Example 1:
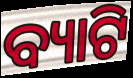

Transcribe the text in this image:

ବ୍ୟାଟି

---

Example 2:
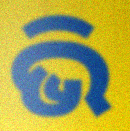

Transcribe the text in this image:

ଭି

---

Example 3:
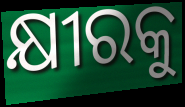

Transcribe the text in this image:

କ୍ଷୀରକୁ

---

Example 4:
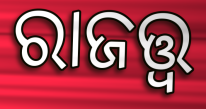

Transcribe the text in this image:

ରାଜତ୍ତ୍ୱ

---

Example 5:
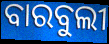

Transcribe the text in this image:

ବାରବୁଲୀ